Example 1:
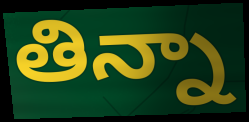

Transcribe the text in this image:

తిన్నా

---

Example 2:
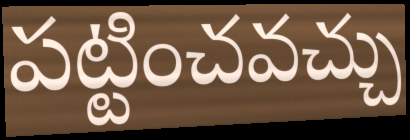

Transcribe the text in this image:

పట్టించవచ్చు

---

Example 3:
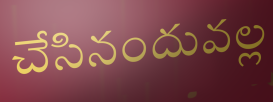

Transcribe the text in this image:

చేసినందువల్ల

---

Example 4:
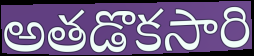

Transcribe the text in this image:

అతడొకసారి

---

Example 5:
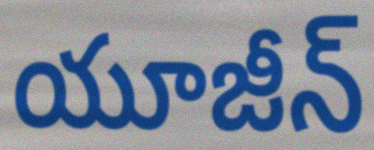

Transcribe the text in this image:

యూజీన్